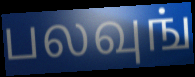
பலவுங்